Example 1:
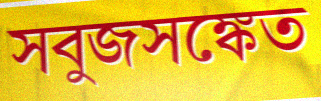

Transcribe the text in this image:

সবুজসঙ্কেত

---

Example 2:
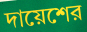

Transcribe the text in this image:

দায়েশের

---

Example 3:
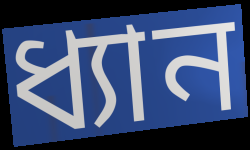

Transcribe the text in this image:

ধ্যান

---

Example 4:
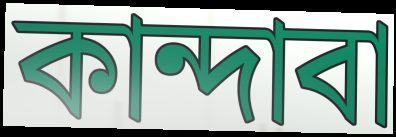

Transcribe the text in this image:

কান্দাবা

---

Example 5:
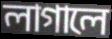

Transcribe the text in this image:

লাগালে